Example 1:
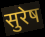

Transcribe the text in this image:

सुरेष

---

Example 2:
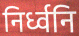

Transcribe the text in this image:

निर्ध्वनि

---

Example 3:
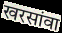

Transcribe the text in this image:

खरसांवा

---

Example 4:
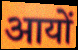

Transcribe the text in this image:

आयों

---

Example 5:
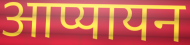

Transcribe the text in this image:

आप्यायन